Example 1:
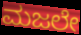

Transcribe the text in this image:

ಮಜಲೇ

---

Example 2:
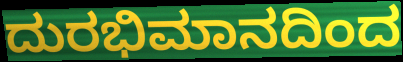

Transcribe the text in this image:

ದುರಭಿಮಾನದಿಂದ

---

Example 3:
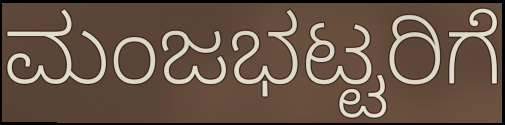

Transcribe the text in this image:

ಮಂಜಭಟ್ಟರಿಗೆ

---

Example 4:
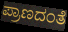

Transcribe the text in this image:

ಪ್ರಾಣದಂತೆ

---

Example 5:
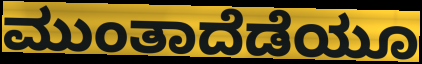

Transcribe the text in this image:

ಮುಂತಾದೆಡೆಯೂ